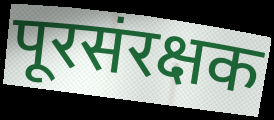
पूरसंरक्षक